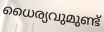
ധൈര്യവുമുണ്ട്